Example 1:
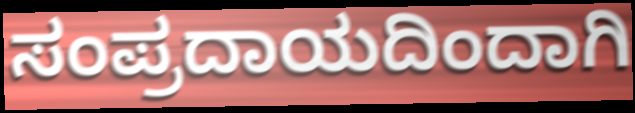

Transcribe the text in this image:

ಸಂಪ್ರದಾಯದಿಂದಾಗಿ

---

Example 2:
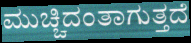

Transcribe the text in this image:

ಮುಚ್ಚಿದಂತಾಗುತ್ತದೆ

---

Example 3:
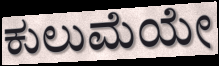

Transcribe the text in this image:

ಕುಲುಮೆಯೇ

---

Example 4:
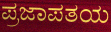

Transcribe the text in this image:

ಪ್ರಜಾಪತಯ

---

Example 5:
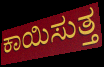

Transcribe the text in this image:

ಕಾಯಿಸುತ್ತ